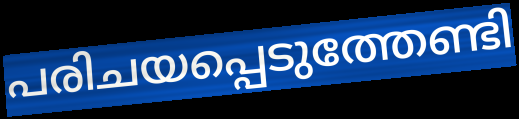
പരിചയപ്പെടുത്തേണ്ടി